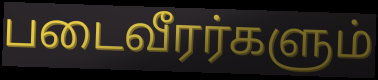
படைவீரர்களும்